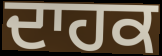
ਦਾਹਕ